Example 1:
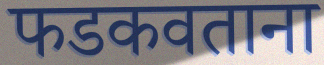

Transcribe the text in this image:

फडकवताना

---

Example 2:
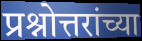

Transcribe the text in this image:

प्रश्नोत्तरांच्या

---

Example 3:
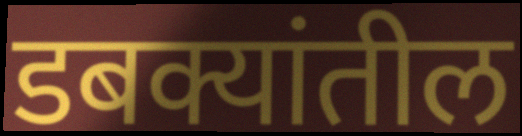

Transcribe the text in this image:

डबक्यांतील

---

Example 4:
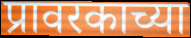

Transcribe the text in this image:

प्रावरकाच्या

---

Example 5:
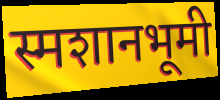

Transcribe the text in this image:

स्मशानभूमी